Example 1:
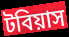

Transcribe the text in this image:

টবিয়াস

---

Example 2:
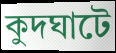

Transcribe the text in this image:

কুদঘাটে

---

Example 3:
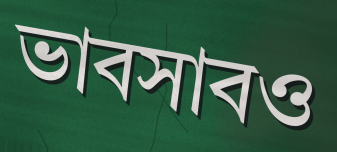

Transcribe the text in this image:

ভাবসাবও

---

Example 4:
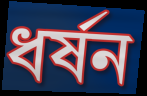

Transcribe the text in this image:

ধর্ষন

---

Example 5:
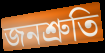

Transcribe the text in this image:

জনশ্রুতি